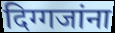
दिग्गजांना